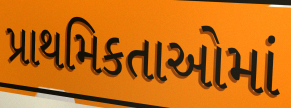
પ્રાથમિકતાઓમાં